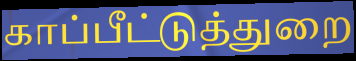
காப்பீட்டுத்துறை